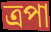
ত্রপা